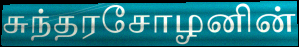
சுந்தரசோழனின்